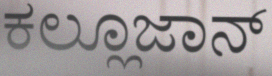
ಕಲ್ಲೂಜಾನ್